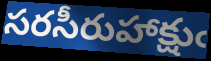
సరసీరుహాక్షుఁ